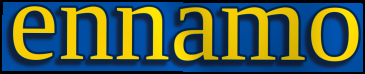
ennamo